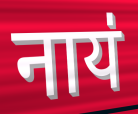
नाय॑